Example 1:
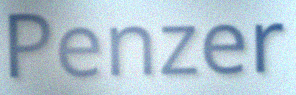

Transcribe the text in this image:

Penzer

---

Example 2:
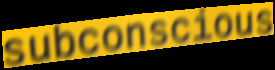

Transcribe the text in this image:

subconscious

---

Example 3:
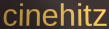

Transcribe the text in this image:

cinehitz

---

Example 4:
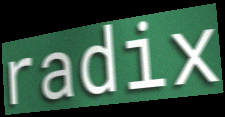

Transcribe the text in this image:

radix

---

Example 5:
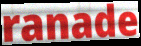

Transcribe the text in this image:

ranade